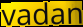
vadan